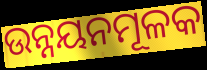
ଉନ୍ନୟନମୂଳକ